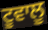
ਟੂਵਾਲੂ